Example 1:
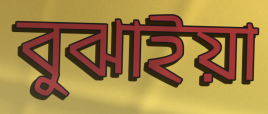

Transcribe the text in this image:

বুঝাইয়া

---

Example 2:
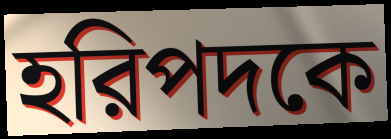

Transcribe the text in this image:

হরিপদকে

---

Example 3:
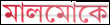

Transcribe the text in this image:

মালমোকে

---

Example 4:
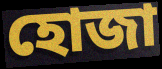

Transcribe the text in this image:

হোজা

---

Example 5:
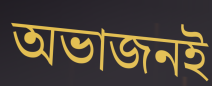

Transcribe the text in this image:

অভাজনই